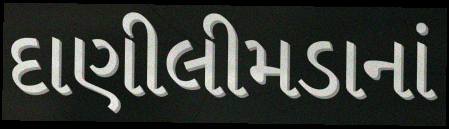
દાણીલીમડાનાં